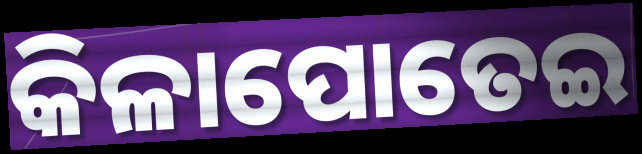
କିଳାପୋତେଇ